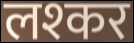
लश्‍कर